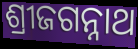
ଶ୍ରୀଜଗନ୍ନାଥ